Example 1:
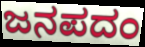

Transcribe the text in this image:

ಜನಪದಂ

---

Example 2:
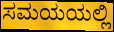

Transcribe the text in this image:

ಸಮಯಯಲ್ಲಿ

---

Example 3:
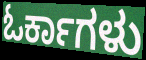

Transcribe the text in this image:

ಓರ್ಕಾಗಳು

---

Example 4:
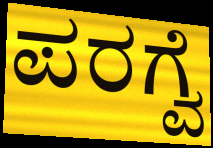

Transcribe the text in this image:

ಪರಗ್ವೆ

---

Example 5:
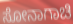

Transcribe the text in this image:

ಸೋನಾಗಾಚಿ